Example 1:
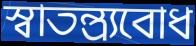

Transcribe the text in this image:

স্বাতন্ত্র্যবোধ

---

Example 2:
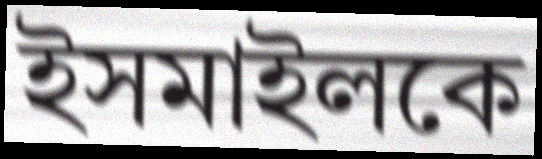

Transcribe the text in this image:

ইসমাইলকে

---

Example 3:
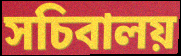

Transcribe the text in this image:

সচিবালয়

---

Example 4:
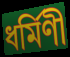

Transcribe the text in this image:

ধর্মিণী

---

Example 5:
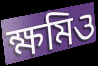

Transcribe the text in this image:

ক্ষমিও